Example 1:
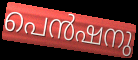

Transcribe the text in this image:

പെൻഷനു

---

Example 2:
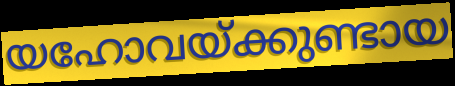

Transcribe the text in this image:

യഹോവയ്ക്കുണ്ടായ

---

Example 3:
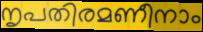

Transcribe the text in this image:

നൃപതിരമണീനാം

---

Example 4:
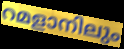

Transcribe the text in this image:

റമളാനിലും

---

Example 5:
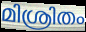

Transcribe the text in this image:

മിശ്രിതം